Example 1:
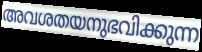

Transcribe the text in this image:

അവശതയനുഭവിക്കുന്ന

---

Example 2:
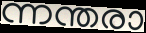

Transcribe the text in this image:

ന്നന്തരാ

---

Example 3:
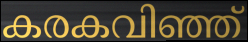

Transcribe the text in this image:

കരകവിഞ്ഞ്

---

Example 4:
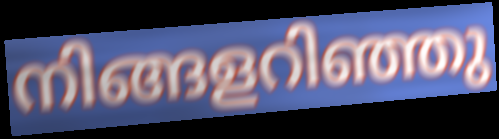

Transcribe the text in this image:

നിങ്ങളറിഞ്ഞു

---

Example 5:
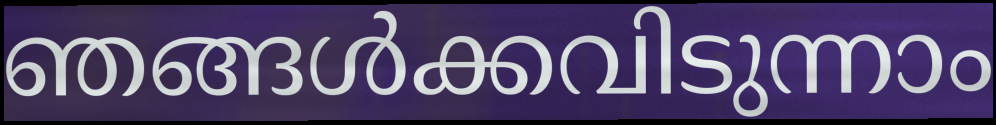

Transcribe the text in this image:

ഞങ്ങൾക്കവിടുന്നാം